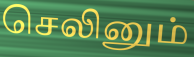
செலினும்